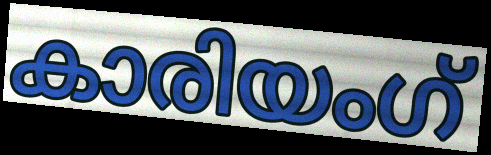
കാരിയംഗ്